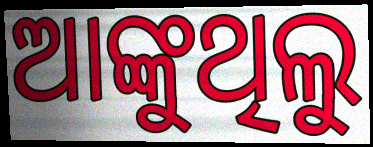
ଆଙ୍କୁଥିଲୁ